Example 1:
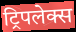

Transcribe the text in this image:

ट्रिपलेक्स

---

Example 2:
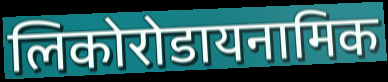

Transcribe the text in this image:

लिकोरोडायनामिक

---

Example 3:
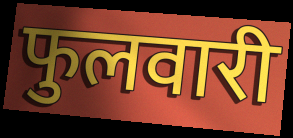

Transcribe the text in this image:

फुलवारी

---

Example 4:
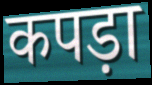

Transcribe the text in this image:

कपड़ा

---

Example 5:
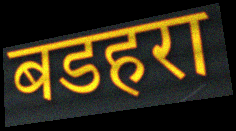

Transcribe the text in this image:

बडहरा